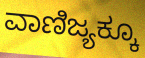
ವಾಣಿಜ್ಯಕ್ಕೂ